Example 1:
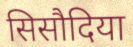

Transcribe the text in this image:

सिसौदिया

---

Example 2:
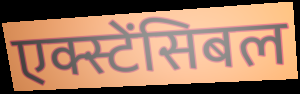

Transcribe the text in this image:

एक्स्टेंसिबल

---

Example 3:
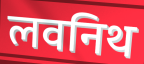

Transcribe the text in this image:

लवनिथ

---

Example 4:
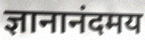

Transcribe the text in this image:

ज्ञानानंदमय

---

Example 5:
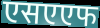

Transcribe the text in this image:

एसएएफ